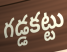
గడ్డకట్టు